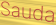
Sauda